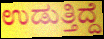
ಉಡುತ್ತಿದ್ದೆ